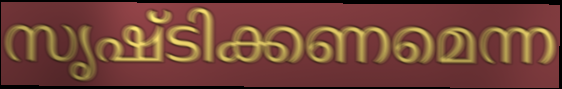
സൃഷ്ടിക്കണമെന്ന